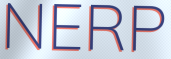
NERP